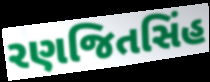
રણજિતસિંહ